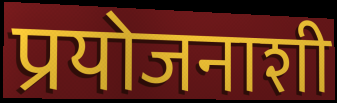
प्रयोजनाशी